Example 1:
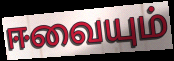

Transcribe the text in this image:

ஈவையும்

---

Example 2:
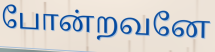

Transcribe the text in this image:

போன்றவனே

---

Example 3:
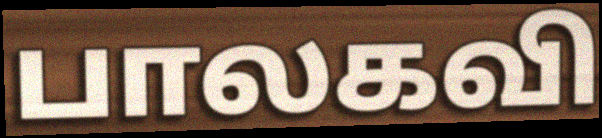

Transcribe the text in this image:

பாலகவி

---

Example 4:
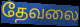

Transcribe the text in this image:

தேவலை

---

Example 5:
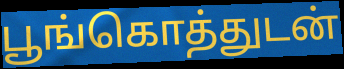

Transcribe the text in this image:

பூங்கொத்துடன்